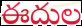
ఈదుల